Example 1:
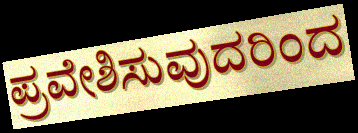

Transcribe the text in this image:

ಪ್ರವೇಶಿಸುವುದರಿಂದ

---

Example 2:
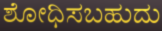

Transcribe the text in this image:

ಶೋಧಿಸಬಹುದು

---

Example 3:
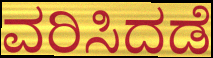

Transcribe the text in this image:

ವರಿಸಿದಡೆ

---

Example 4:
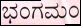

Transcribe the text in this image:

ಭಂಗಮಂ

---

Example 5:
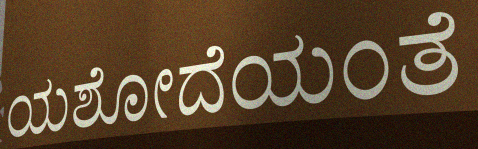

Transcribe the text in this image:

ಯಶೋದೆಯಂತೆ